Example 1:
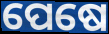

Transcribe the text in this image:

ପେଷେ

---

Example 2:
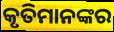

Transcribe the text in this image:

କୃତିମାନଙ୍କର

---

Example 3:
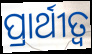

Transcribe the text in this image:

ପ୍ରାର୍ଥୀତ୍ଵ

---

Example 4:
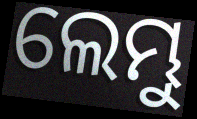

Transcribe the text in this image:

ଲେମ୍ଭୁ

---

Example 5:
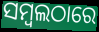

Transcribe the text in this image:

ସମ୍ବଲଠାରେ